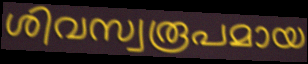
ശിവസ്വരൂപമായ